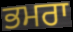
ਭਮਰਾ